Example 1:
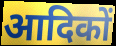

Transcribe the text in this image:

आदिकों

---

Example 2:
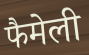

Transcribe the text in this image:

फैमेली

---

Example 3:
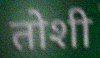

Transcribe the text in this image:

तोशी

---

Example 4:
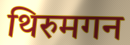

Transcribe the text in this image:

थिरुमगन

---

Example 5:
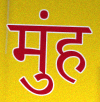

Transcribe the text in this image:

मुंह